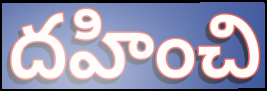
దహించి